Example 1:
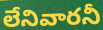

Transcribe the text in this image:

లేనివారనీ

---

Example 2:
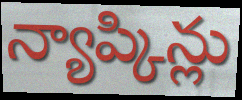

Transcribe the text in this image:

న్యాప్కిన్లు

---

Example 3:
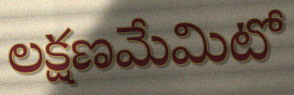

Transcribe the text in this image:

లక్షణమేమిటో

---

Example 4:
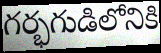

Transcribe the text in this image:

గర్భగుడిలోనికి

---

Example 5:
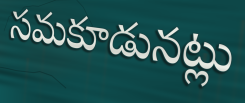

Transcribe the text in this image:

సమకూడునట్లు